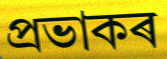
প্ৰভাকৰ